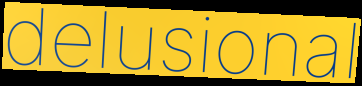
delusional